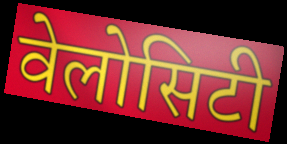
वेलोसिटी